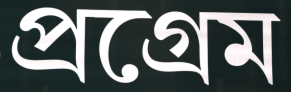
প্ৰগ্ৰেম